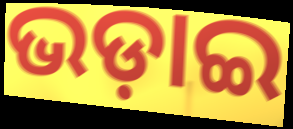
ଭଡ଼ାଇ